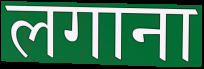
लगाना